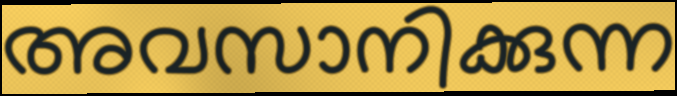
അവസാനിക്കുന്ന